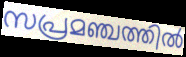
സപ്രമഞ്ചത്തിൽ